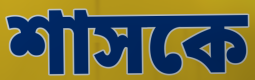
শাসকে